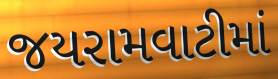
જયરામવાટીમાં